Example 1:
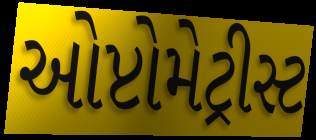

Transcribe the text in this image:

ઓપ્ટોમેટ્રીસ્ટ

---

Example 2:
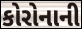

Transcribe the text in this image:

કોરોનાની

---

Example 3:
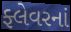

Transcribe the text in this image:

ફ્લેવરનાં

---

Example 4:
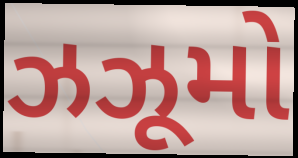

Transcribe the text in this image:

ઝઝૂમો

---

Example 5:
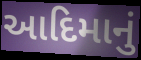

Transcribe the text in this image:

આદિમાનું